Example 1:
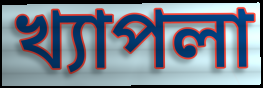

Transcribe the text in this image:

খ্যাপলা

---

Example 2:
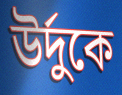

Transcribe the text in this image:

উর্দুকে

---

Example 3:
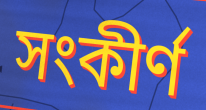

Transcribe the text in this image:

সংকীর্ণ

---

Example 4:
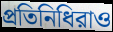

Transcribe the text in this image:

প্রতিনিধিরাও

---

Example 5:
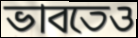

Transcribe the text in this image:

ভাবতেও